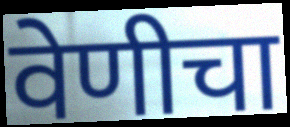
वेणीचा